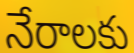
నేరాలకు